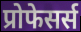
प्रोफेसर्स